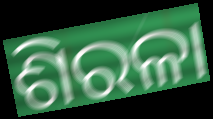
ଶିରଳା